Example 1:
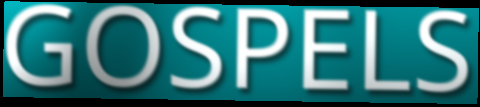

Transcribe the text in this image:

GOSPELS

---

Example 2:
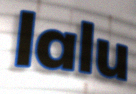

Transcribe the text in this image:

lalu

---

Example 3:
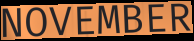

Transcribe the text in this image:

NOVEMBER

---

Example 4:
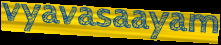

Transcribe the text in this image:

vyavasaayam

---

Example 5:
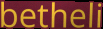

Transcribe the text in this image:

betheli